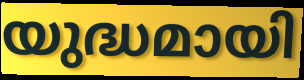
യുദ്ധമായി